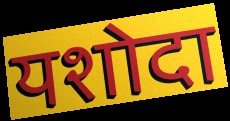
यशोदा